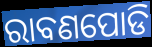
ରାବଣପୋଡି